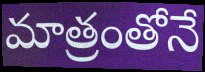
మాత్రంతోనే